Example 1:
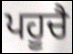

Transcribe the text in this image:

ਪਹੂਚੈ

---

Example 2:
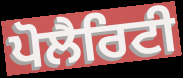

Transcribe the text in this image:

ਪੋਲੈਰਿਟੀ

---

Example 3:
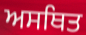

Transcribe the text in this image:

ਅਸਥਿਤ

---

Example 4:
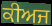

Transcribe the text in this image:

ਕੀਅਜ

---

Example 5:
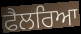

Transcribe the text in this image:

ਫੈਲਰਿਆ